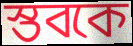
স্তবকে